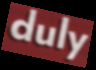
duly